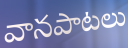
వానపాటలు